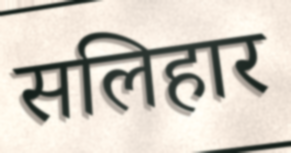
सलिहार